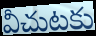
వీచుటకు